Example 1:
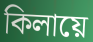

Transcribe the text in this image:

কিলায়ে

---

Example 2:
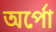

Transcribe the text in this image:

অর্পো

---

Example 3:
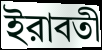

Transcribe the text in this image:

ইরাবতী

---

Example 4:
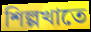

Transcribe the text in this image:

শিল্পখাতে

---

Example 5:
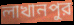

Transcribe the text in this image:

লাখানপুর